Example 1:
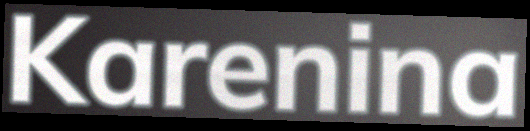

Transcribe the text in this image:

Karenina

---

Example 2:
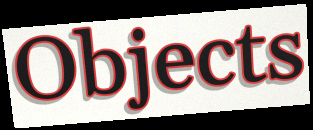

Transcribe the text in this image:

Objects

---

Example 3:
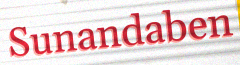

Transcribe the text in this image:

Sunandaben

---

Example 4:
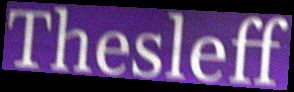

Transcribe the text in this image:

Thesleff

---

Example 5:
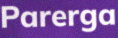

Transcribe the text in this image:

Parerga